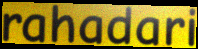
rahadari